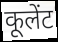
कूलेंट